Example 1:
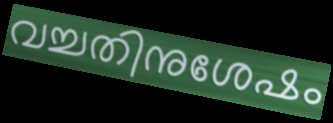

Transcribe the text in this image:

വച്ചതിനുശേഷം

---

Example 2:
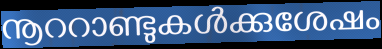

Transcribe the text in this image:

നൂററാണ്ടുകൾക്കുശേഷം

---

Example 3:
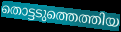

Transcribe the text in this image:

തൊട്ടടുത്തെത്തിയ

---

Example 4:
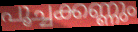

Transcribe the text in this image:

പൂച്ചക്കണ്ണും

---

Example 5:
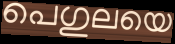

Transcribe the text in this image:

പെഗുലയെ